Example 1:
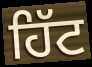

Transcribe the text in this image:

ਹਿੱਟ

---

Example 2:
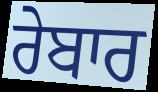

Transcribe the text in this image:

ਰੇਬਾਰ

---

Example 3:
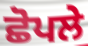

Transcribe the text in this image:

ਛੋਪਲੇ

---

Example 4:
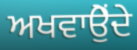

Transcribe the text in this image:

ਅਖਵਾਉੇਂਦੇ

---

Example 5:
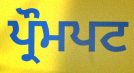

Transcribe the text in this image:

ਪ੍ਰੌਮਪਟ